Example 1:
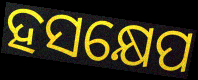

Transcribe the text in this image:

ହସକ୍ଷେପ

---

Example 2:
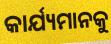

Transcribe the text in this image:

କାର୍ଯ୍ୟମାନକୁ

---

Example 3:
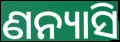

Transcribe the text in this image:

ଣନ୍ୟାସି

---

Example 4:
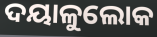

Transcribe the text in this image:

ଦୟାଳୁଲୋକ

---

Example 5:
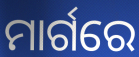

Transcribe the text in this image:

ମାର୍ଗରେ